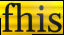
fhis